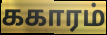
ககாரம்